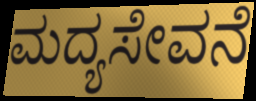
ಮದ್ಯಸೇವನೆ